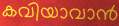
കവിയാവാൻ